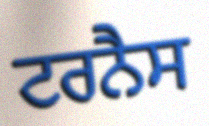
ਟਰਨੈਸ